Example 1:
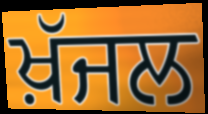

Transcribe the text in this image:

ਖ਼ੱਜਲ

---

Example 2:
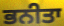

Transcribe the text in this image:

ਭਨੀਤਾ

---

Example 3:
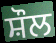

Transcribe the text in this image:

ਸ਼ੌਲ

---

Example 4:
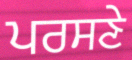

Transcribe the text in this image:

ਪਰਸਣੇ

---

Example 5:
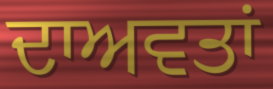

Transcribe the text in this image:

ਦਾਅਵਤਾਂ